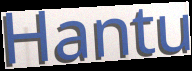
Hantu